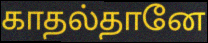
காதல்தானே